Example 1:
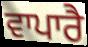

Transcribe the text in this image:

ਵਾਪਾਰੈ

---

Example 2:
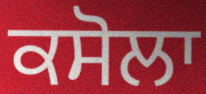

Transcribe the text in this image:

ਕਸੋਲਾ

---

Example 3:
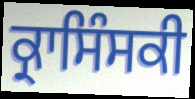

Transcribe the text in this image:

ਕ੍ਰਾਸਿੰਸਕੀ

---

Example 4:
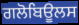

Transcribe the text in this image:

ਗਲੋਬਿਊਲਸ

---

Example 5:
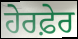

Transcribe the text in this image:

ਹੇਰਫ਼ੇਰ